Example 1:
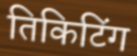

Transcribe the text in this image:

तिकिटिंग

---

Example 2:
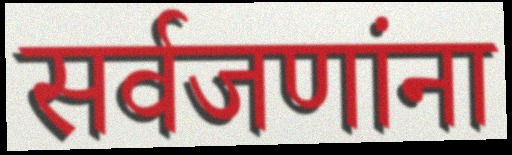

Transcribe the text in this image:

सर्वजणांना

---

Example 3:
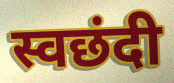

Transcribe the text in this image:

स्वछंदी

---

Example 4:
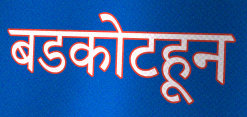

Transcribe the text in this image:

बडकोटहून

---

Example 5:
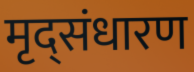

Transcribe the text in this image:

मृद्संधारण